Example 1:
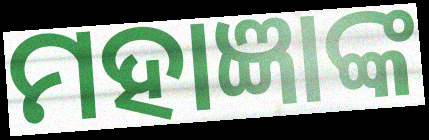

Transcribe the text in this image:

ମହାଜ୍ଞାଙ୍କ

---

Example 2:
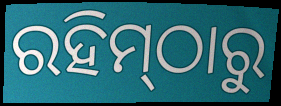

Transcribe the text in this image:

ରହିମ୍‌ଠାରୁ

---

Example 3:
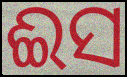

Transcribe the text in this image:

ଈସ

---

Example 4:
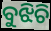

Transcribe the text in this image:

ବୁଝିଚି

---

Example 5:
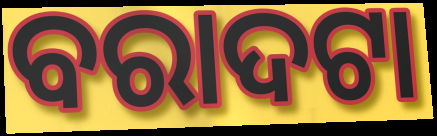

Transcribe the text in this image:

ବରାଦଟା